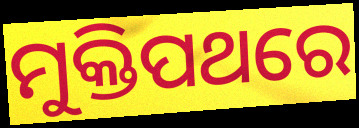
ମୁକ୍ତିପଥରେ